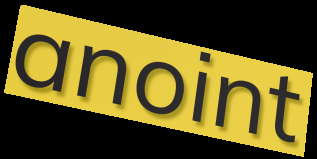
anoint